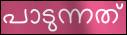
പാടുന്നത്